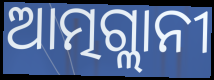
ଆତ୍ମଗ୍ଲାନୀ